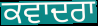
ਕਵਾਦਰਾ